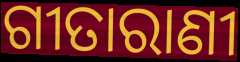
ଗୀତାରାଣୀ